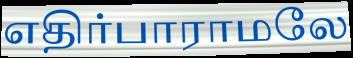
எதிர்பாராமலே